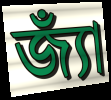
জ্যাঁ